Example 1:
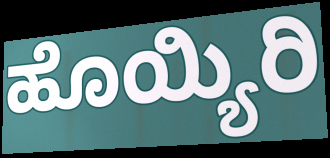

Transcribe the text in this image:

ಹೊಯ್ಯಿರಿ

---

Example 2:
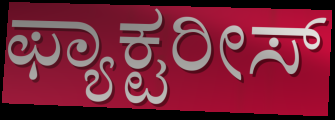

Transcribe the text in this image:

ಫ್ಯಾಕ್ಟರೀಸ್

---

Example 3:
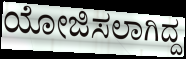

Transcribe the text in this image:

ಯೋಜಿಸಲಾಗಿದ್ದ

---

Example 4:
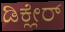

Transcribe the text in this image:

ಡಿಕ್ಲೇರ್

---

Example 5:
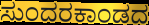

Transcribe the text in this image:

ಸುಂದರಕಾಂಡದ